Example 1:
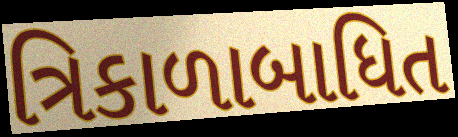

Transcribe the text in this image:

ત્રિકાળાબાધિત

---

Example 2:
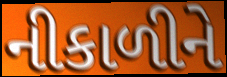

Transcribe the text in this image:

નીકાળીને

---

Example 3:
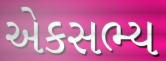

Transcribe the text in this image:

એકસભ્ય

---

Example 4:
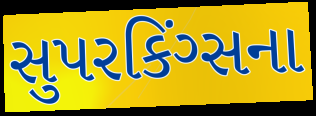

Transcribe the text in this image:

સુપરકિંગ્સના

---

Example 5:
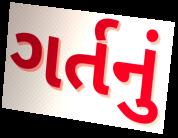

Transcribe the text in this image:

ગર્તનું